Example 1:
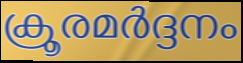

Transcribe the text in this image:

ക്രൂരമർദ്ദനം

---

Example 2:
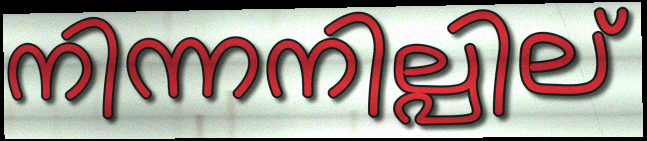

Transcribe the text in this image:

നിന്നനില്പില്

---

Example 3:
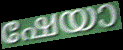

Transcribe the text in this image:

ഷേയാ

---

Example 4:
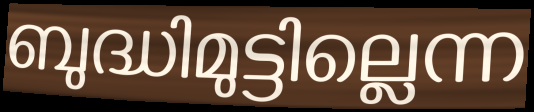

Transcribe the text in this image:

ബുദ്ധിമുട്ടില്ലെന്ന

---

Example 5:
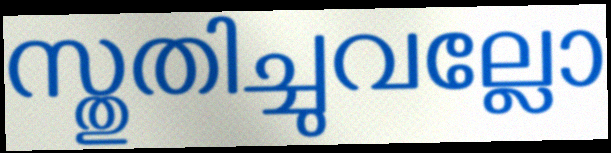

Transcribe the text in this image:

സ്തുതിച്ചുവല്ലോ